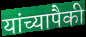
यांच्यापैकी